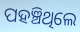
ପହଞ୍ଚିଥିଲେ